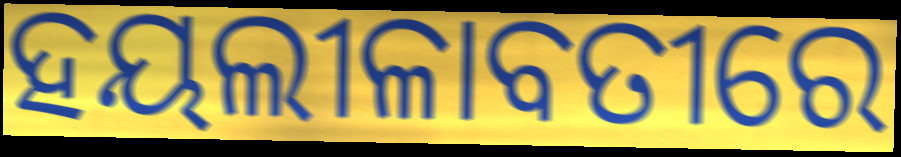
ହୟଲୀଳାବତୀରେ